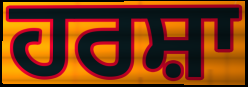
ਹਰਸ਼ਾ